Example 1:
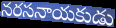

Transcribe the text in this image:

నరసనాయకుడు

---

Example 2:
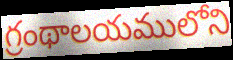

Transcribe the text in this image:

గ్రంథాలయములోని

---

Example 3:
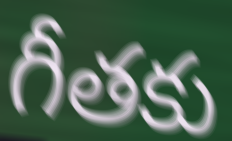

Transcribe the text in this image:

గీతకు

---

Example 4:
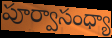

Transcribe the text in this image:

పూర్వాసంధ్యా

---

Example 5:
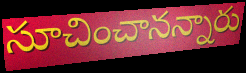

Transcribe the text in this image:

సూచించానన్నారు